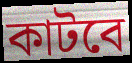
কাটবে